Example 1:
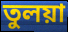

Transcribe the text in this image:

তুলয়া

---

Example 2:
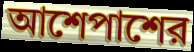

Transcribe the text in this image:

আশেপাশের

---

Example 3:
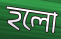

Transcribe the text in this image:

হলো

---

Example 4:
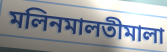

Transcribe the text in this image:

মলিনমালতীমালা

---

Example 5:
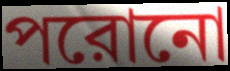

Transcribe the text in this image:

পরোনো